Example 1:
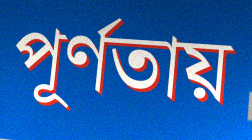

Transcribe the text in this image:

পূর্ণতায়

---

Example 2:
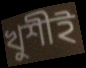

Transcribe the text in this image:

খুশীই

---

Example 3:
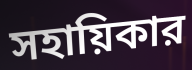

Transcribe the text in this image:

সহায়িকার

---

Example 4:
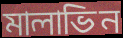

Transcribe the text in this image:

মালাভিন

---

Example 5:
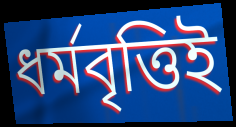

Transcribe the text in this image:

ধর্মবৃত্তিই